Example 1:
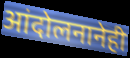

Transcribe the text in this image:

आंदोलनानेही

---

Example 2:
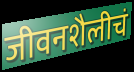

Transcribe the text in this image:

जीवनशैलीचं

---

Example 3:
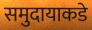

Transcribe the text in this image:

समुदायाकडे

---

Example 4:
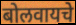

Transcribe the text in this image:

बोलवायचे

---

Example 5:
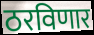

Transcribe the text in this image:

ठरविणार